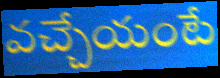
వచ్చేయంటే